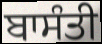
ਬਾਸੰਤੀ